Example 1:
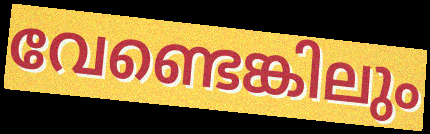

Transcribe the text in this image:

വേണ്ടെങ്കിലും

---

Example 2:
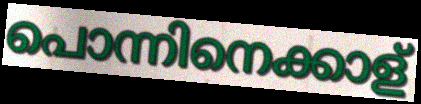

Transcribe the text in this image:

പൊന്നിനെക്കാള്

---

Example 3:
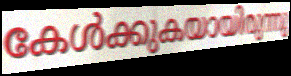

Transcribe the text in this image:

കേൾക്കുകയായിരുന്നു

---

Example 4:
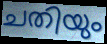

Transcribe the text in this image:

ചതിയും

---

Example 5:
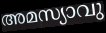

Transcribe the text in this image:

അമസ്യാവു